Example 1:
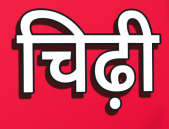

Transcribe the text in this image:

चिढ़ी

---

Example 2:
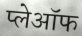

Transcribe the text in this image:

प्लेऑफ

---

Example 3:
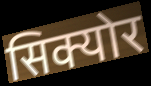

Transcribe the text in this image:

सिक्योर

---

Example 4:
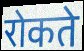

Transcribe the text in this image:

रोकते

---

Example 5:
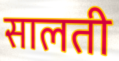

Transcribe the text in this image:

सालती